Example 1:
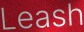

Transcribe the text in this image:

Leash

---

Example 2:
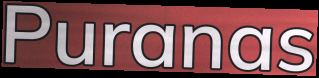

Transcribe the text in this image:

Puranas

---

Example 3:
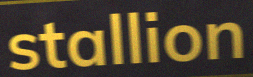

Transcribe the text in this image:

stallion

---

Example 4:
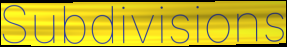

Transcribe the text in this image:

Subdivisions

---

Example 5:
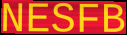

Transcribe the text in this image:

NESFB